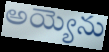
అయ్యెను